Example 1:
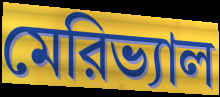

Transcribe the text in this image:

মেরিভ্যাল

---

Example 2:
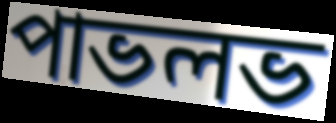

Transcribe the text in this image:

পাভলভ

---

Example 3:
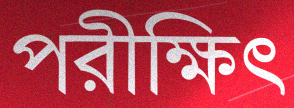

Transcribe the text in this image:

পরীক্ষিৎ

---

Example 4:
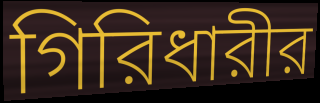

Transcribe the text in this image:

গিরিধারীর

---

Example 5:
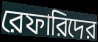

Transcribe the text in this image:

রেফারিদের